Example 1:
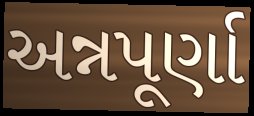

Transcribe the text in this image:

અન્નપૂર્ણા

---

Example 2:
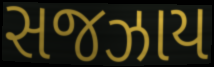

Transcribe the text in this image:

સજઝાય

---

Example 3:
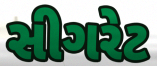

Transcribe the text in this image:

સીગરેટ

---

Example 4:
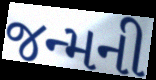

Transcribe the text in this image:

જન્મની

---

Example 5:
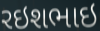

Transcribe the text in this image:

રઇશભાઇ